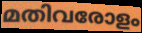
മതിവരോളം